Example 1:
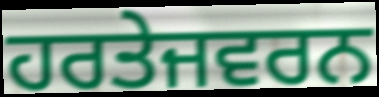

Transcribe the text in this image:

ਹਰਤੇਜਵਰਨ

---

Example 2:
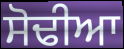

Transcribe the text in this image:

ਸੋਢੀਆ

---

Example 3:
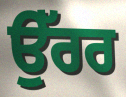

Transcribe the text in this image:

ਉੱਰਰ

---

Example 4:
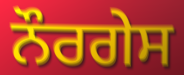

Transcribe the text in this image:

ਨੌਰਗੇਸ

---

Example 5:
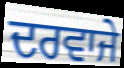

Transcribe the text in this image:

ਦਰਵਾਜੇ